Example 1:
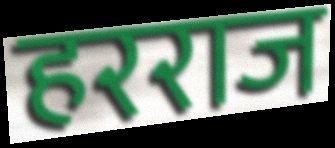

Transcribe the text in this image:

हरराज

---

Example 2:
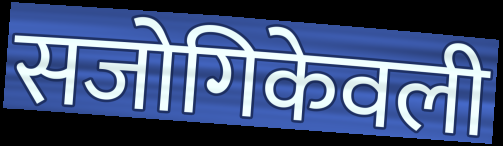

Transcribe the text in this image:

सजोगिकेवली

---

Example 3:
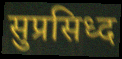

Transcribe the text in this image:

सुप्रसिध्द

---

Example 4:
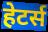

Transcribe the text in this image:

हेटर्स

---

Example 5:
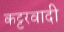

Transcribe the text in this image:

कट्टरवादी